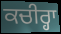
ਕਚੀਰ੍ਹਾ